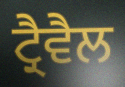
ਟ੍ਰੈਵੈਲ